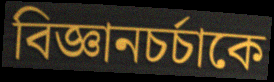
বিজ্ঞানচর্চাকে